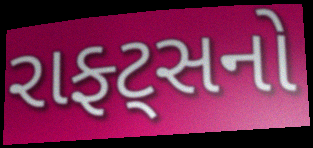
રાફ્ટ્સનો